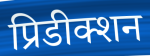
प्रिडीक्शन